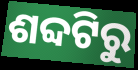
ଶବ୍ଦଟିରୁ